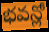
భవన్లో